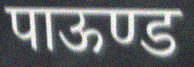
पाऊण्ड